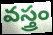
వస్త్రం